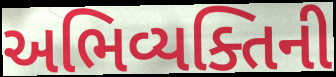
અભિવ્યક્તિની